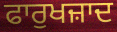
ਫਾਰੁਖਜ਼ਾਦ